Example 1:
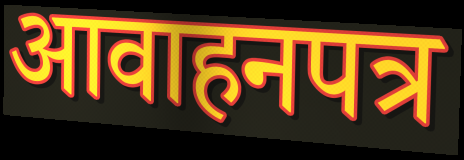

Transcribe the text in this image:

आवाहनपत्र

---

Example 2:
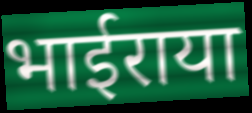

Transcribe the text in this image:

भाईराया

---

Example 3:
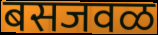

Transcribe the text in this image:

बसजवळ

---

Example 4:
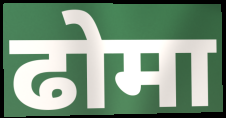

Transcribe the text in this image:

ढोमा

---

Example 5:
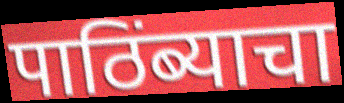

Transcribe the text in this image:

पाठिंब्याचा